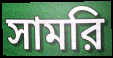
সামরি